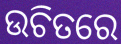
ଉଚିତରେ